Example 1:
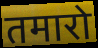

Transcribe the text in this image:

तमारो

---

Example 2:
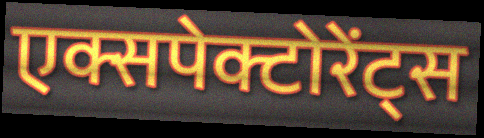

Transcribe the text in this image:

एक्सपेक्टोरेंट्स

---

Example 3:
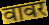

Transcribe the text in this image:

वावर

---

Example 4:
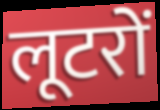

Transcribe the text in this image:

लूटरों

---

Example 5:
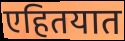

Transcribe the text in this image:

एहितयात